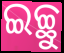
ଇଚ୍ଛୁ